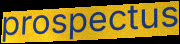
prospectus